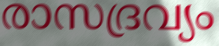
രാസദ്രവ്യം